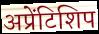
अप्रेंटिशिप